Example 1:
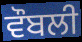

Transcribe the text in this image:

ਵੌਬਲੀ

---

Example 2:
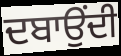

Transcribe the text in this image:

ਦਬਾਉਂਦੀ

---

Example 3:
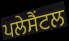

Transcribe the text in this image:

ਪਲੇਸੈਂਟਲ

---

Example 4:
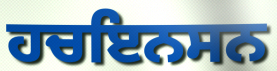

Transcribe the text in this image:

ਹਚਇਨਸਨ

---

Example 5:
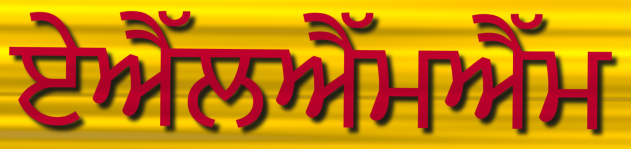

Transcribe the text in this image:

ਏਐੱਲਐੱਮਐੱਮ